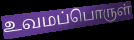
உவமப்பொருள்